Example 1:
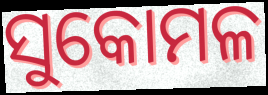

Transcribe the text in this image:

ସୁକୋମଳ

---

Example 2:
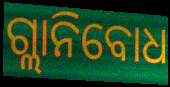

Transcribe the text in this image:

ଗ୍ଲାନିବୋଧ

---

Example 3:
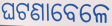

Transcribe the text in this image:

ଘଟଣାବେଳେ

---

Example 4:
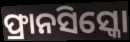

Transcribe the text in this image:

ଫ୍ରାନସିସ୍କୋ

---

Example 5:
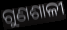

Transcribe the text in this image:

ଗୁଣଶାଳୀ